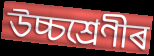
উচ্চশ্ৰেণীৰ